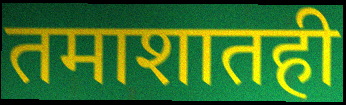
तमाशातही